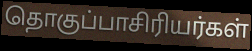
தொகுப்பாசிரியர்கள்